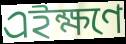
এইক্ষণে